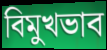
বিমুখভাব